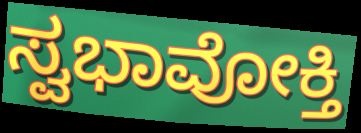
ಸ್ವಭಾವೋಕ್ತಿ